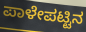
ಪಾಳೇಪಟ್ಟಿನ